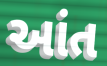
આંત